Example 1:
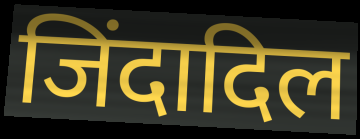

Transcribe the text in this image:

जिंदादिल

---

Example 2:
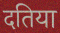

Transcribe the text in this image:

दतिया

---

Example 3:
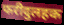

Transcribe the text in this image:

फरीदुलहक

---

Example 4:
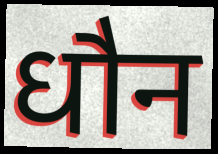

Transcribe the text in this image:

धौन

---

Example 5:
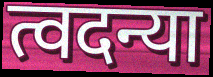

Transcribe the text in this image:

त्वदन्या